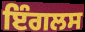
ਇੰਗਲਸ